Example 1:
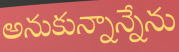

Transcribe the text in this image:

అనుకున్నాన్నేను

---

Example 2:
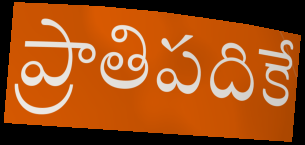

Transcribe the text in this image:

ప్రాతిపదికే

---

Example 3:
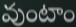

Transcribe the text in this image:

వుంటాం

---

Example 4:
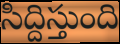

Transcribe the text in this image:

సిద్దిస్తుంది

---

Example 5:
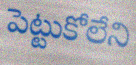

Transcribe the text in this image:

పెట్టుకోలేని